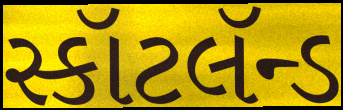
સ્કૉટલૅન્ડ